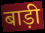
बाड़ी